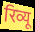
रिव्यू